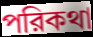
পরিকথা